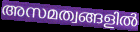
അസമത്വങ്ങളിൽ